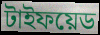
টাইফয়েড